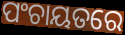
ପଂଚାୟତରେ